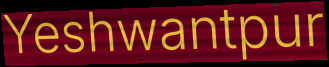
Yeshwantpur